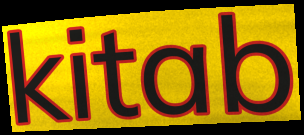
kitab